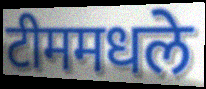
टीममधले